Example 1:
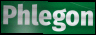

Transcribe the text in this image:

Phlegon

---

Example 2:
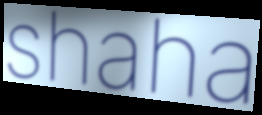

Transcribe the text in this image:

shaha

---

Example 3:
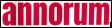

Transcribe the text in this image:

annorum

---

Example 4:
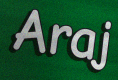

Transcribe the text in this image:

Araj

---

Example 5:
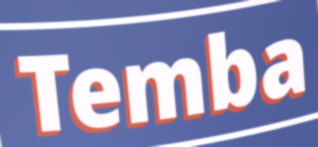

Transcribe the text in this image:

Temba